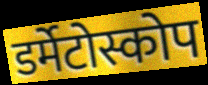
डर्मेटोस्कोप